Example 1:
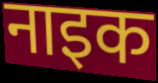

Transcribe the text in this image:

नाइक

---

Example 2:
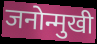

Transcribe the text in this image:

जनोन्मुखी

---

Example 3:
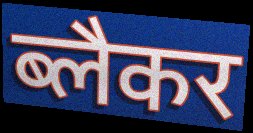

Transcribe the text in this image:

ब्लैकर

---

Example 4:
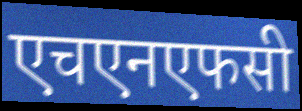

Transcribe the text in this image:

एचएनएफसी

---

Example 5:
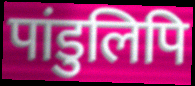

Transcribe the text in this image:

पांडुलिपि